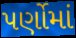
પર્ણોમાં